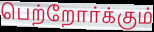
பெற்றோர்க்கும்